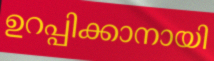
ഉറപ്പിക്കാനായി